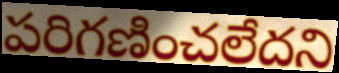
పరిగణించలేదని